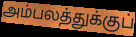
அம்பலத்துக்குப்